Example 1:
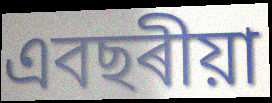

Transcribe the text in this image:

এবছৰীয়া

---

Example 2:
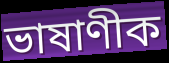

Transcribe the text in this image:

ভাষাণীক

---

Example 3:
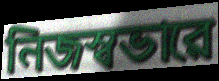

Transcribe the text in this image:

নিজস্বভাৱে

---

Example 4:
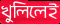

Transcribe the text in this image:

খুলিলেই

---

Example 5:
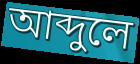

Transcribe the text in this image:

আব্দুলে